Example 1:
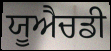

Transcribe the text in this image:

ਯੂਐਚਡੀ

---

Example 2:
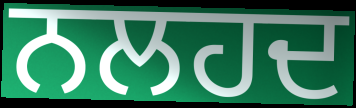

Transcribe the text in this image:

ਨਲਹਦ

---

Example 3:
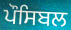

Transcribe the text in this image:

ਪੌਸਿਬਲ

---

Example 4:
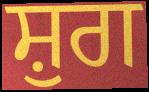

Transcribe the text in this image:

ਸ਼ੁਗ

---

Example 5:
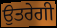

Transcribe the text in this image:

ਉਤਰੇਗੀ